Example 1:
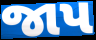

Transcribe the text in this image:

જાપ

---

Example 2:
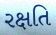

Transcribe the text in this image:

રક્ષતિ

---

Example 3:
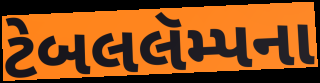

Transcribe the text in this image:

ટેબલલૅમ્પના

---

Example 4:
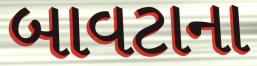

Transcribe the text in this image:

બાવટાના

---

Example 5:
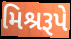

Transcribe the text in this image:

મિશ્રરૂપે